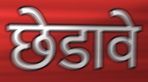
छेडावे